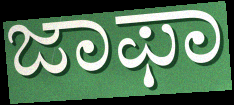
ಜಾಫಾ